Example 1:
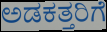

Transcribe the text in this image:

ಅಡಕತ್ತರಿಗೆ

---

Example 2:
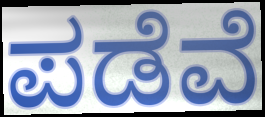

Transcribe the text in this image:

ಪಡೆವೆ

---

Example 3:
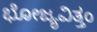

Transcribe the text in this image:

ಭೋಜ್ಯವಿತ್ತಂ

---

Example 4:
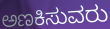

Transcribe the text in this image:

ಅಣಕಿಸುವರು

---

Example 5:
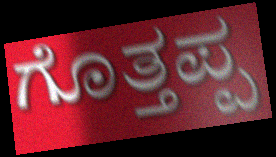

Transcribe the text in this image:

ಗೊತ್ತಪ್ಪ